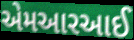
એમઆરઆઈ